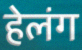
हेलंग